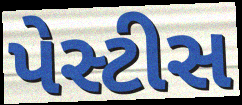
પેસ્ટીસ